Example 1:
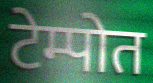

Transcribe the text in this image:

टेम्पोत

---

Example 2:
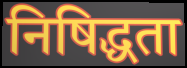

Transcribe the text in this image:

निषिद्धता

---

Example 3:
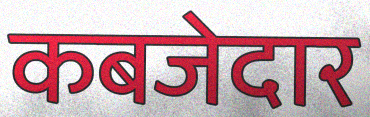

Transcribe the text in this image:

कबजेदार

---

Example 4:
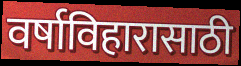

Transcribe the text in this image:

वर्षाविहारासाठी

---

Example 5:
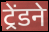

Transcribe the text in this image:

ट्रेंडने